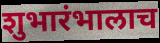
शुभारंभालाच